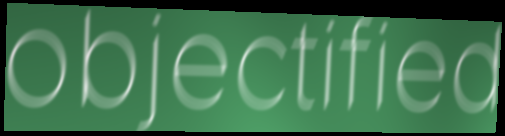
objectified